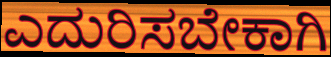
ಎದುರಿಸಬೇಕಾಗಿ